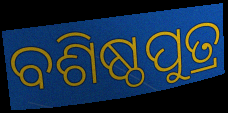
ବଶିଷ୍ଠପୁତ୍ର